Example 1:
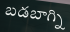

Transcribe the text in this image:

బడబాగ్ని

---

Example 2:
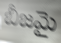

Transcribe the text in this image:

బీజమై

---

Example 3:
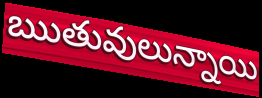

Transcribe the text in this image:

ఋతువులున్నాయి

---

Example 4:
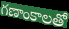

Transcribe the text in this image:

గణాంకాలతో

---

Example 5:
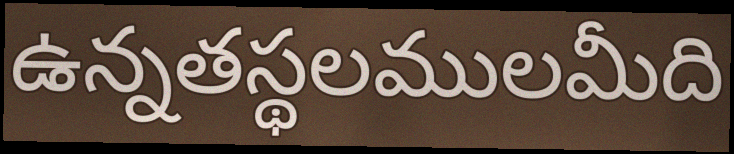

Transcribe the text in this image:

ఉన్నతస్థలములమీది